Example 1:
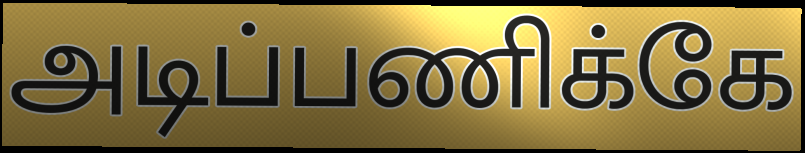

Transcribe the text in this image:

அடிப்பணிக்கே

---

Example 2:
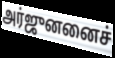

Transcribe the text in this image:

அர்ஜுனனைச்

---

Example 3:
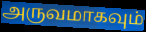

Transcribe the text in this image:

அருவமாகவும்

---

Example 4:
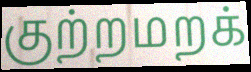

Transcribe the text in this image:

குற்றமறக்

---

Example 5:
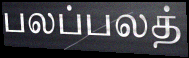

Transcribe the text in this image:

பலப்பலத்